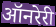
ऑनरेरी